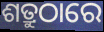
ଶତ୍ରୁଠାରେ